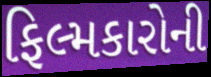
ફિલ્મકારોની